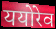
ययोरेव